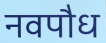
नवपौध